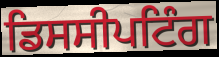
ਡਿਸਸੀਪਟਿੰਗ